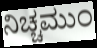
ನಿಚ್ಚಮುಂ